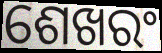
ଶେଖରଂ